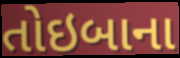
તોઇબાના